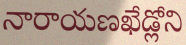
నారాయణఖేడ్లోని